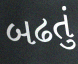
બઢતું